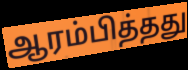
ஆரம்பித்தது